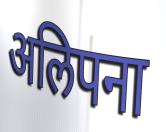
अलिपना